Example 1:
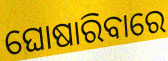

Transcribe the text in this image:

ଘୋଷାରିବାରେ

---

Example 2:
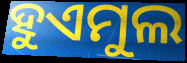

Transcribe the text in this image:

ହୁଏମୁଲ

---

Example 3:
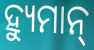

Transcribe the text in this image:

ହ୍ୟୁମାନ୍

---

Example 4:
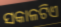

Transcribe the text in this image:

ସକାଳଟିଏ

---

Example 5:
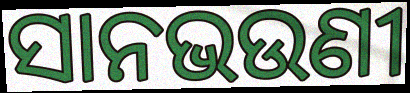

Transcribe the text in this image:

ସାନଭଉଣୀ